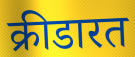
क्रीडारत